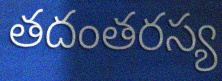
తదంతరస్య